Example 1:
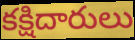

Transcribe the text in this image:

కక్షిదారులు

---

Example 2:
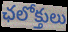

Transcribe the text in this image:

ఛలోక్తులు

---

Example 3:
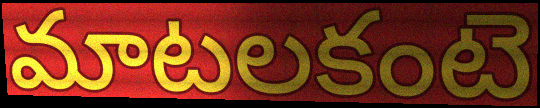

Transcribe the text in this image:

మాటలకంటె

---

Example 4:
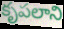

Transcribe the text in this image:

కృపలాని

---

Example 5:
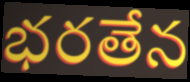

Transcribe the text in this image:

భరతేన